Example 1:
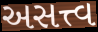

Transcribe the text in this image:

અસત્ત્વ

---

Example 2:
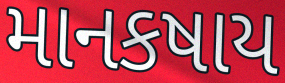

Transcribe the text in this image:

માનકષાય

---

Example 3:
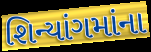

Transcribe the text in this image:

શિન્યાંગમાંના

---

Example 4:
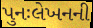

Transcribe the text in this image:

પુનઃલેખનની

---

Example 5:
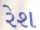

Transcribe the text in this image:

રેશ